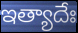
ఇత్యాదేః